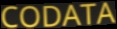
CODATA